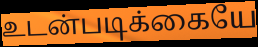
உடன்படிக்கையே